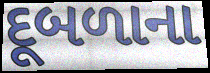
દૂબળાના